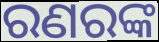
ରଣରଙ୍କ